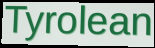
Tyrolean